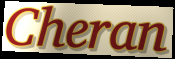
Cheran